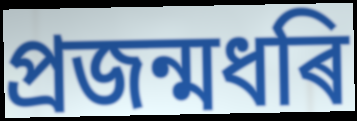
প্ৰজন্মধৰি